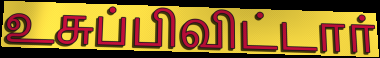
உசுப்பிவிட்டார்